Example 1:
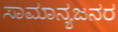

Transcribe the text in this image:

ಸಾಮಾನ್ಯಜನರ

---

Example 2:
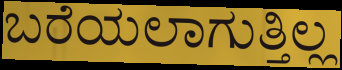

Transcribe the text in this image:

ಬರೆಯಲಾಗುತ್ತಿಲ್ಲ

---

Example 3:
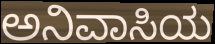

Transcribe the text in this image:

ಅನಿವಾಸಿಯ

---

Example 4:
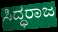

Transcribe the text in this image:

ಸಿದ್ಧರಾಜ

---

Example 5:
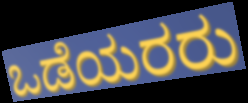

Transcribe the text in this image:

ಒಡೆಯರರು